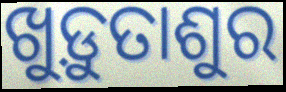
ଖୁଡ଼ୁତାଶୁର